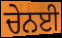
ਚੇਨਈ